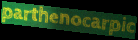
parthenocarpic